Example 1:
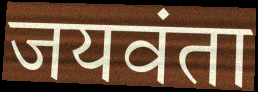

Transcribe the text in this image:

जयवंता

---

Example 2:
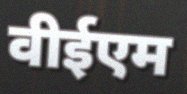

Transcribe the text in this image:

वीईएम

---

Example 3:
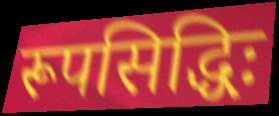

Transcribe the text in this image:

रूपसिद्धिः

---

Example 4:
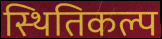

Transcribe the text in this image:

स्थितिकल्प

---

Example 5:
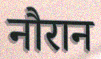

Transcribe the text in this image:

नौरान